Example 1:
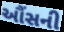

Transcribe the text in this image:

ઔંસની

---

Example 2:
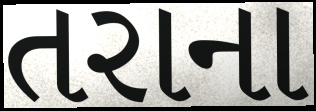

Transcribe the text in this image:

તરાના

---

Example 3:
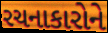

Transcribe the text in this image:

રચનાકારોને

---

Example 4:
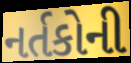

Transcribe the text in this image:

નર્તકોની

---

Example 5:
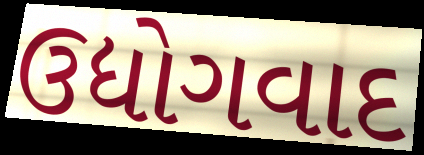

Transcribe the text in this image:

ઉદ્યોગવાદ